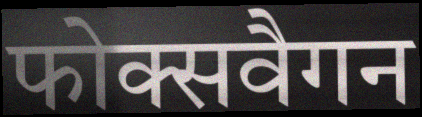
फोक्सवैगन